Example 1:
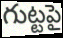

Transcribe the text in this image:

గుట్టపై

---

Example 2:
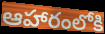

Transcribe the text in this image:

ఆహారంలోకి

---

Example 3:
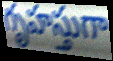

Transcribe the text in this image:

గృహస్తుగా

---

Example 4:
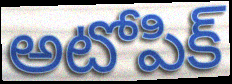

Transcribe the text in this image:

అటోపిక్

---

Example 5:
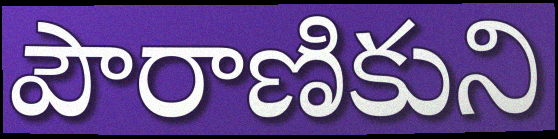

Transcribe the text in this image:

పౌరాణికుని